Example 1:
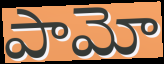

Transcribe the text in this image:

పామో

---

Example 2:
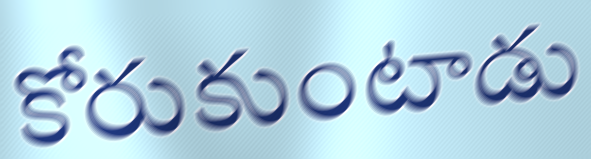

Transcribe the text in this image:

కోరుకుంటాడు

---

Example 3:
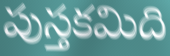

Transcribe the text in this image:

పుస్తకమిది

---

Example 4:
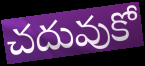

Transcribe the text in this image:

చదువుకో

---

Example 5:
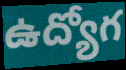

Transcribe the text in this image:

ఉద్యోగ